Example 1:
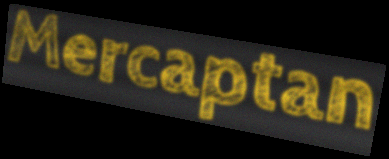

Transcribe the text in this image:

Mercaptan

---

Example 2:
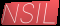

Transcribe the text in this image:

NSIL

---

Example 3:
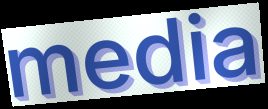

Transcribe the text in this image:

media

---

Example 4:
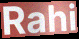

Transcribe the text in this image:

Rahi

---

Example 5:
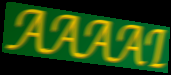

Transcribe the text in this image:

AAAAI